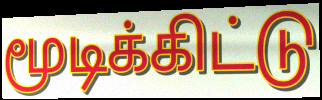
மூடிக்கிட்டு